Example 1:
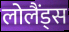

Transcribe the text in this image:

लोलैंड्स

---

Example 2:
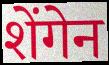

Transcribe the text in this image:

शेंगेन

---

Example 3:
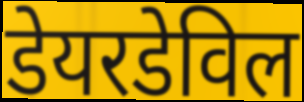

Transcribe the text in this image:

डेयरडेविल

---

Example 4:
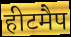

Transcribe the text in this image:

हीटमैप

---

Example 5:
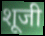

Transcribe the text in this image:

शूजी